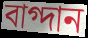
বাগ্দান